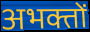
अभक्तों